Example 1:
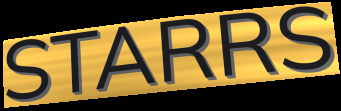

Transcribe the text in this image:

STARRS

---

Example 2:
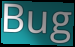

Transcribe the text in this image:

Bug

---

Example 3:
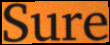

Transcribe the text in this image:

Sure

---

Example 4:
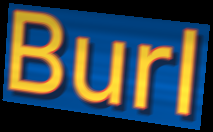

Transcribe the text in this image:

Burl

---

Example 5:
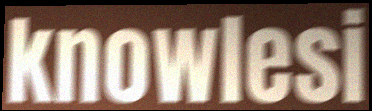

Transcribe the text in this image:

knowlesi